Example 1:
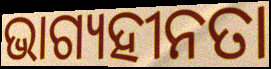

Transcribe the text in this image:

ଭାଗ୍ୟହୀନତା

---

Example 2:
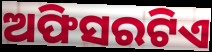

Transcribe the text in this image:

ଅଫିସରଟିଏ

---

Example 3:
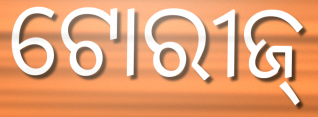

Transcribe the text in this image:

ଟୋରୀଜ୍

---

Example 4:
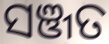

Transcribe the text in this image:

ସଞ୍ଜତ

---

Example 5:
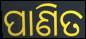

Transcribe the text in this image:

ପାଣିତ